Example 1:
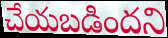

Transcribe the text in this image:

చేయబడిందని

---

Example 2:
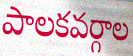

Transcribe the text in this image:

పాలకవర్గాల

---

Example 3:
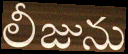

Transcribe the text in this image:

లీజును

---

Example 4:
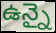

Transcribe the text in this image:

ఉన్నై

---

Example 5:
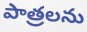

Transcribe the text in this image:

పాత్రలను